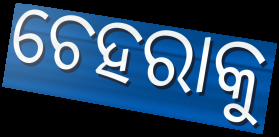
ଚେହରାକୁ